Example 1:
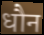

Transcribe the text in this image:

धौन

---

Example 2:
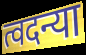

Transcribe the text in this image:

त्वदन्या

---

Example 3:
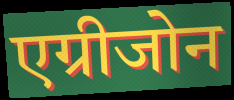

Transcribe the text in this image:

एग्रीजोन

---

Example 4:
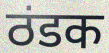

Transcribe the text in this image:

ठंडक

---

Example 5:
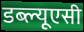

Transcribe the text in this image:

डब्ल्यूएसी